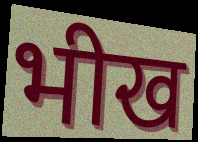
भीख